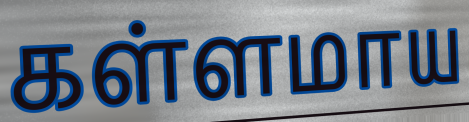
கள்ளமாய